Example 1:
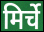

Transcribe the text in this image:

मिर्चे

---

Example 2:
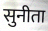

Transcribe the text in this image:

सुनीता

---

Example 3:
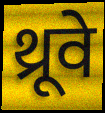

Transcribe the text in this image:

थ्रूवे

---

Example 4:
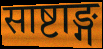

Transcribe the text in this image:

साष्टाङ्ग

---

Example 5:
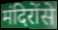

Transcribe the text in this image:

मंदिरोंसे